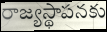
రాజ్యస్థాపనకు